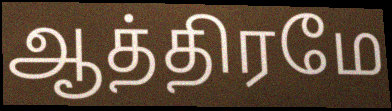
ஆத்திரமே